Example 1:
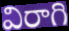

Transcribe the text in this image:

విరాగి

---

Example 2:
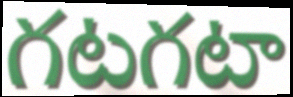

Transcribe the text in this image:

గటగటా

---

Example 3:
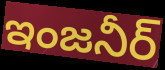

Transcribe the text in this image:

ఇంజనీర్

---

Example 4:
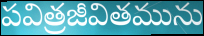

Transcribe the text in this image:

పవిత్రజీవితమును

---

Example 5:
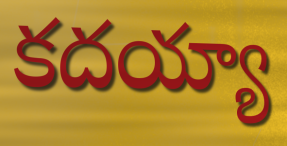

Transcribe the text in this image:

కదయ్యా